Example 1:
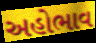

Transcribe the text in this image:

અહોભાવ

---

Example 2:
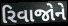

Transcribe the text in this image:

રિવાજોને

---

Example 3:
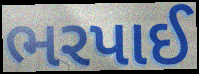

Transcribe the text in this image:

ભરપાઈ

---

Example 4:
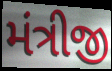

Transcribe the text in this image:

મંત્રીજી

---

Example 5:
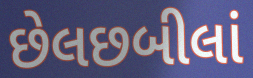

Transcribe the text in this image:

છેલછબીલાં